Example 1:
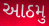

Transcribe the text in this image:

આઠમુ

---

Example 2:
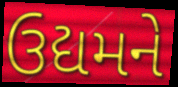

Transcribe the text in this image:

ઉદ્યમને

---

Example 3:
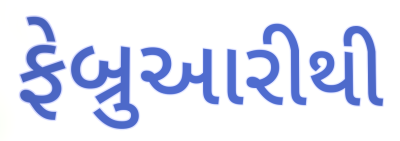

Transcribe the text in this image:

ફેબ્રુઆરીથી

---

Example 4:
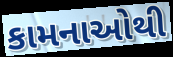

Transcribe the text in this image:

કામનાઓથી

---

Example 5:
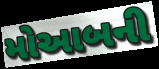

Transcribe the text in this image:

મોઆબની